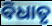
ବିଧାତୃ